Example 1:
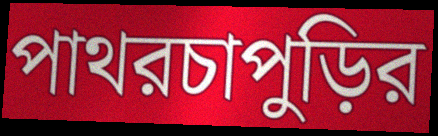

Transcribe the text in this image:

পাথরচাপুড়ির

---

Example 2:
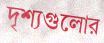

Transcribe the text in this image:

দৃশ্যগুলোর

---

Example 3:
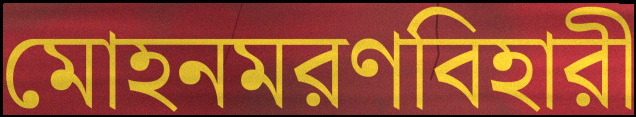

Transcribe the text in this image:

মোহনমরণবিহারী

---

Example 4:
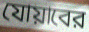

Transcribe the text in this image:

যোয়াবের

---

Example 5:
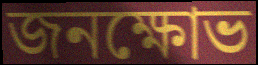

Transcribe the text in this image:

জনক্ষোভ